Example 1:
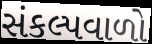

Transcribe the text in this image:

સંકલ્પવાળો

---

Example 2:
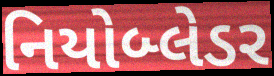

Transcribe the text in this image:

નિયોબ્લેડર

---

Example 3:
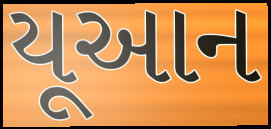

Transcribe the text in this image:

યૂઆન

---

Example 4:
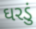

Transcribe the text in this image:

ઘરડું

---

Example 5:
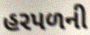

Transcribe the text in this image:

હરપળની